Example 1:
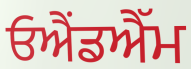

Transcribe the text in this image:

ਓਐਂਡਐੱਮ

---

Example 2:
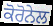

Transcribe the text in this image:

ਕੋਰੋਨੇਲ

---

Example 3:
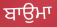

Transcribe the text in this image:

ਬਾਉਮਾ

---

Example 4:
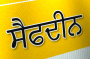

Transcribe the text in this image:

ਸੈਫਦੀਨ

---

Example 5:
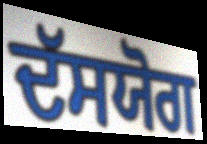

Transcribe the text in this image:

ਦੱਸਯੋਗ